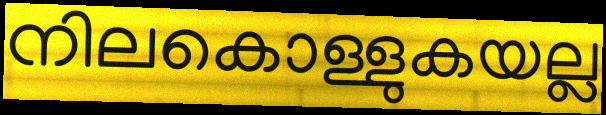
നിലകൊള്ളുകയല്ല